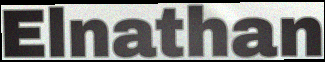
Elnathan